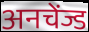
अनचेंज्ड